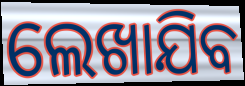
ଲେଖାଯିବ